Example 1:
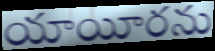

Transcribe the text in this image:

యాయీరను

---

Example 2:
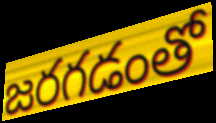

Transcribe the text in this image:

జరగడంతో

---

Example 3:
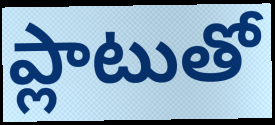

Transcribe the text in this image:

ప్లాటుతో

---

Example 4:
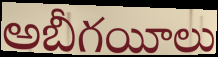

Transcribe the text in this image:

అబీగయీలు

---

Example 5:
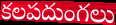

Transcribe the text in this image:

కలపదుంగలు